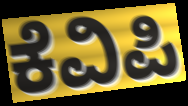
ಕೆವಿಪಿ